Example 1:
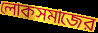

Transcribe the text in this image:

লোকসমাজের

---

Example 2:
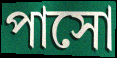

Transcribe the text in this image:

পাসো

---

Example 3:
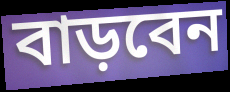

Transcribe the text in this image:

বাড়বেন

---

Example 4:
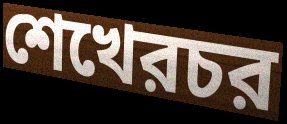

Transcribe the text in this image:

শেখেরচর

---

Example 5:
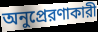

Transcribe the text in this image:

অনুপ্রেরণাকারী